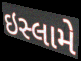
ઇસ્લામે